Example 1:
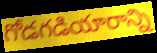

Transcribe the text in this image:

గోడగడియారాన్ని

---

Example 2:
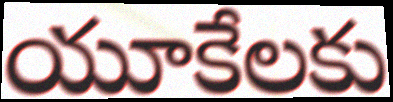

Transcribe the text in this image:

యూకేలకు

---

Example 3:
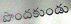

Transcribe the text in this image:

పొందకుండు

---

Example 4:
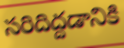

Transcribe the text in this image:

సరిదిద్దడానికి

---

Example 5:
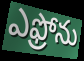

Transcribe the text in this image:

ఎఫ్రోను